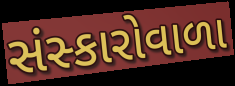
સંસ્કારોવાળા